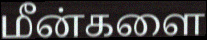
மீன்களை